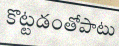
కొట్టడంతోపాటు